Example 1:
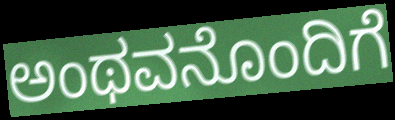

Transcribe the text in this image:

ಅಂಥವನೊಂದಿಗೆ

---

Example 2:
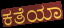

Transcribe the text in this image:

ಕತೆಯಾ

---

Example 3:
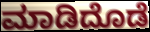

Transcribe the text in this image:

ಮಾಡಿದೊಡೆ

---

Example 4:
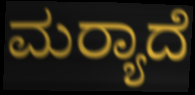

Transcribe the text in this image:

ಮರ‍್ಯಾದೆ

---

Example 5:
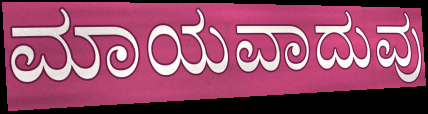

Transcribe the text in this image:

ಮಾಯವಾದುವು